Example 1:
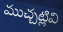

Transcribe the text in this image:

ముచ్చట్లివి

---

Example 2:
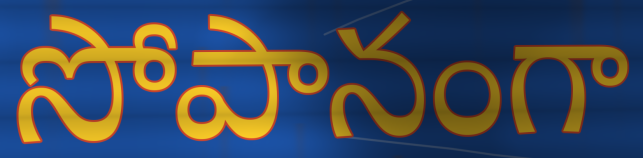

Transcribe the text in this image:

సోపానంగా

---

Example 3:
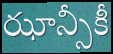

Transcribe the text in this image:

ఝాన్సీకీ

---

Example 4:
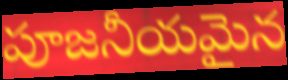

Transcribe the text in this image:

పూజనీయమైన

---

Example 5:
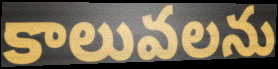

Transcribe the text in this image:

కాలువలను